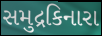
સમુદ્રકિનારા